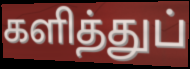
களித்துப்